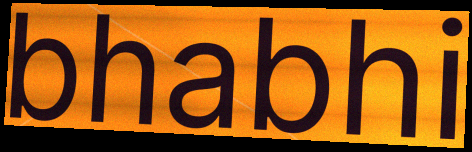
bhabhi